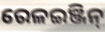
ରେଳଇଞ୍ଜିନ୍